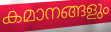
കമാനങ്ങളും